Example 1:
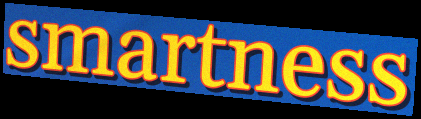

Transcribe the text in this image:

smartness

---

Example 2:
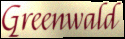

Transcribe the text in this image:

Greenwald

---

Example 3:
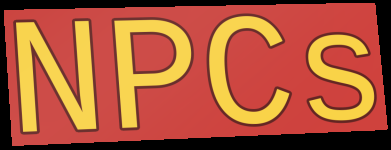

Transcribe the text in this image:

NPCs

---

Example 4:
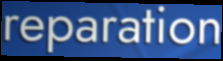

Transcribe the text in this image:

reparation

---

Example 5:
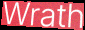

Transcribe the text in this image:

Wrath